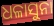
ଧଳାସୁନା